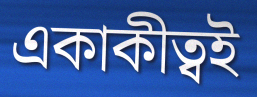
একাকীত্বই